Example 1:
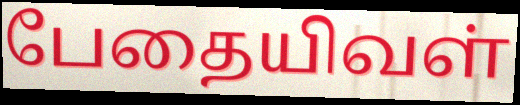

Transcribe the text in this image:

பேதையிவள்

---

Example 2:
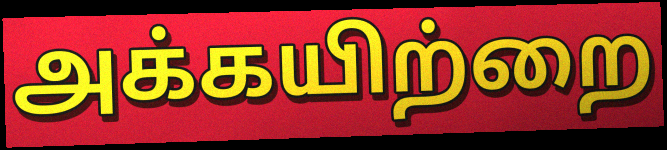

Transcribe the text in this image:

அக்கயிற்றை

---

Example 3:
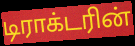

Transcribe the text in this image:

டிராக்டரின்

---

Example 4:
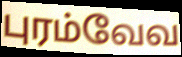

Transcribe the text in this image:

புரம்வேவ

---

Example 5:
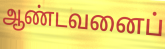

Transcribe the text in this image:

ஆண்டவனைப்